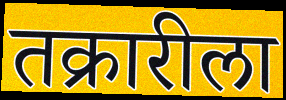
तक्रारीला